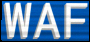
WAF